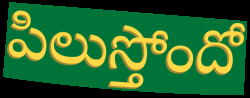
పిలుస్తోందో